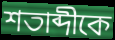
শতাব্দীকে